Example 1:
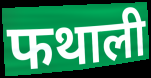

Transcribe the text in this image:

फथाली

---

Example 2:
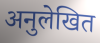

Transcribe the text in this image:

अनुलेखित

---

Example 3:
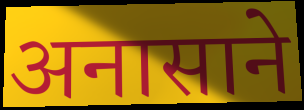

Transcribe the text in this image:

अनासाने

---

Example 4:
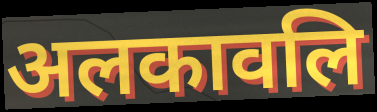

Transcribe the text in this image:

अलकावलि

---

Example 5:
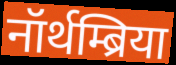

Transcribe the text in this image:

नॉर्थम्ब्रिया